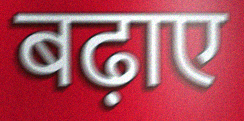
बढ़ाए